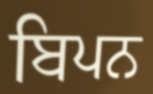
ਬਿਪਨ